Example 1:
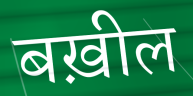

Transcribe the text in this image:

बख़ील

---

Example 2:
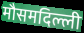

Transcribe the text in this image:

मौसमदिल्ली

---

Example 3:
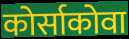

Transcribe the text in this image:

कोर्साकोवा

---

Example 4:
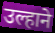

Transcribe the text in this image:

उल्हाने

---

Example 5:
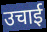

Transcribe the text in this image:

उचाई